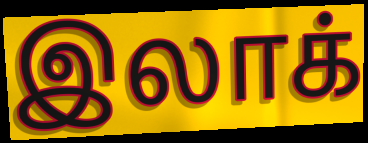
இலாக்